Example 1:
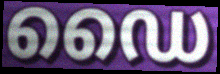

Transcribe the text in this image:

ഡൈ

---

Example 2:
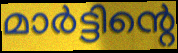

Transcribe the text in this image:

മാർട്ടിന്റെ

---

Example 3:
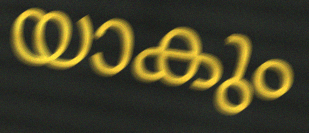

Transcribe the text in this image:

യാകും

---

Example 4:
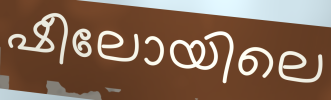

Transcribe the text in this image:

ഷീലോയിലെ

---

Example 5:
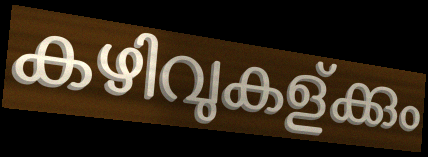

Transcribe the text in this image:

കഴിവുകള്ക്കും